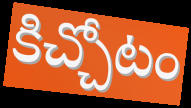
కిచ్చోటం